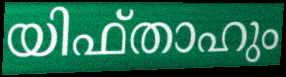
യിഫ്താഹും